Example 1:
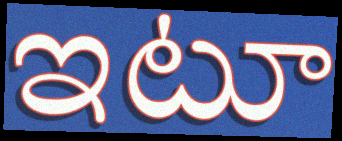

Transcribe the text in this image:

ఇటూ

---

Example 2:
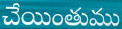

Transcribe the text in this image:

చేయింతుము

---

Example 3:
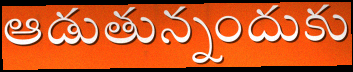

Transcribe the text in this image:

ఆడుతున్నందుకు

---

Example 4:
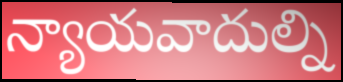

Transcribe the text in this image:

న్యాయవాదుల్ని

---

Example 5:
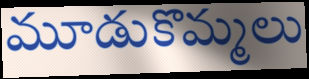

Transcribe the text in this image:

మూడుకొమ్మలు